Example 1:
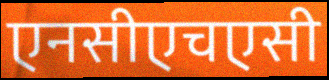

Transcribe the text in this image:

एनसीएचएसी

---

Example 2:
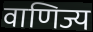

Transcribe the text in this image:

वाणिज्य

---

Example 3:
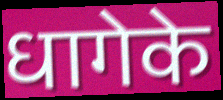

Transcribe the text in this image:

धागेके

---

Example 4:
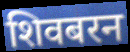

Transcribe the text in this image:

शिवबरन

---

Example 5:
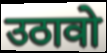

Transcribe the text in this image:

उठावो